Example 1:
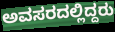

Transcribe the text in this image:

ಅವಸರದಲ್ಲಿದ್ದರು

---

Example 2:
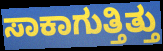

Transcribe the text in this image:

ಸಾಕಾಗುತ್ತಿತ್ತು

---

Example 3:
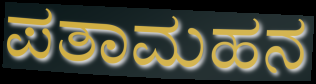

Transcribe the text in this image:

ಪತಾಮಹನ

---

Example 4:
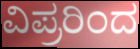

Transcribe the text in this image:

ವಿಪ್ರರಿಂದ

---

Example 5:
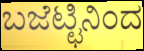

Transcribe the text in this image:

ಬಜೆಟ್ಟಿನಿಂದ